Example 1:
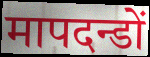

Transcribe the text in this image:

मापदन्डों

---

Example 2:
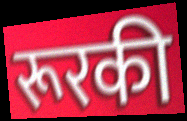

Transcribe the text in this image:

रूरकी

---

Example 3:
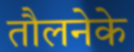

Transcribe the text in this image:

तौलनेके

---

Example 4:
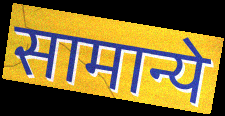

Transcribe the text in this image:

सामान्ये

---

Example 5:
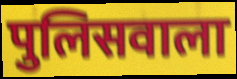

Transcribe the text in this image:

पुलिसवाला